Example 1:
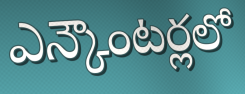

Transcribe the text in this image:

ఎన్కౌంటర్లలో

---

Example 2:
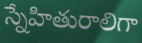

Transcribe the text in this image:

స్నేహితురాలిగా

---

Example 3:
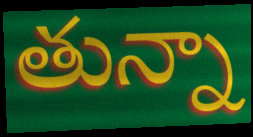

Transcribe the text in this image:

తున్నా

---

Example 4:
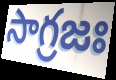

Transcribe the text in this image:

సాగ్రజః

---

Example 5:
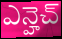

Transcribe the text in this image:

ఎన్హెచ్